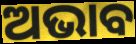
ଅଭାବ